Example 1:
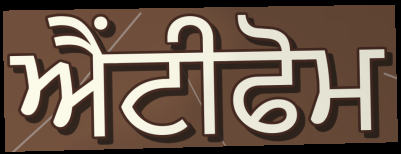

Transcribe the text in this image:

ਐਂਟੀਫੋਮ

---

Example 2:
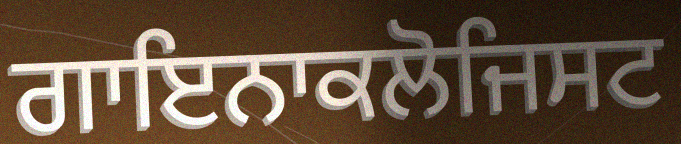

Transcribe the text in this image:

ਗਾਇਨਾਕਲੋਜਿਸਟ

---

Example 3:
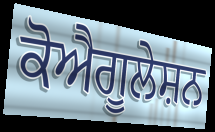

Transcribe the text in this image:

ਕੋਐਗੂਲੇਸ਼ਨ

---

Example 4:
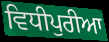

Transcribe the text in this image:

ਵਿਧੀਪੁਰੀਆ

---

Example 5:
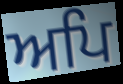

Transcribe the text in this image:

ਅਪਿ